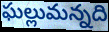
ఘల్లుమన్నది